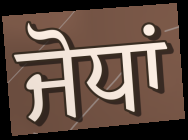
ਜੋਧਾਂ